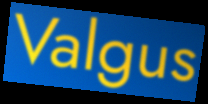
Valgus